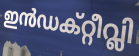
ഇൻഡക്റ്റീവ്ലി